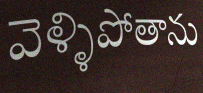
వెళ్ళిపోతాను